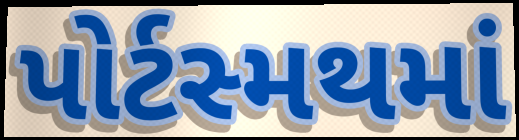
પોર્ટસ્મથમાં